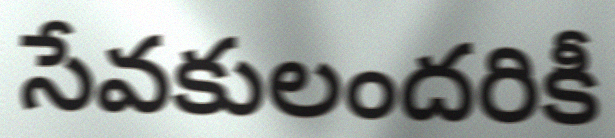
సేవకులందరికీ